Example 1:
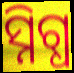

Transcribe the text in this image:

ସ୍ନିଗ୍ଧ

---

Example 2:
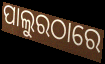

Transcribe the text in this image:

ପାଲୁରଠାରେ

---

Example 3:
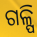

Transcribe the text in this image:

ଗଳ୍ପି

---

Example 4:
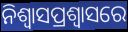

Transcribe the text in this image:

ନିଶ୍ୱାସପ୍ରଶ୍ୱାସରେ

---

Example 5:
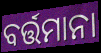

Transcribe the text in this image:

ବର୍ତ୍ତମାନା